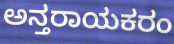
ಅನ್ತರಾಯಕರಂ